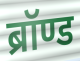
ब्रॉण्ड